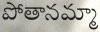
పోతానమ్మా